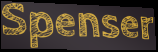
Spenser